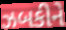
ઝબકીને